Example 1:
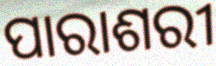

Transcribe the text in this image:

ପାରାଶରୀ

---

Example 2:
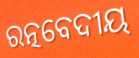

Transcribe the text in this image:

ରତ୍ନବେଦୀୟ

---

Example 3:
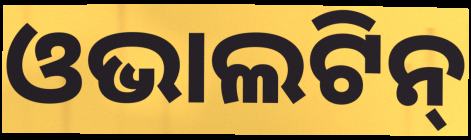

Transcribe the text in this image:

ଓଭାଲଟିନ୍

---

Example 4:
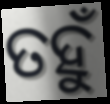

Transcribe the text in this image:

ତହୁଁ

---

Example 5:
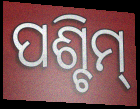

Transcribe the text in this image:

ପଶ୍ଚିମ୍